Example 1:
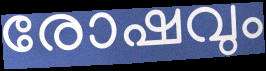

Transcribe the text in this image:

രോഷവും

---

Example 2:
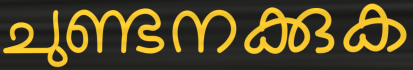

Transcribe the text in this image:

ചുണ്ടനക്കുക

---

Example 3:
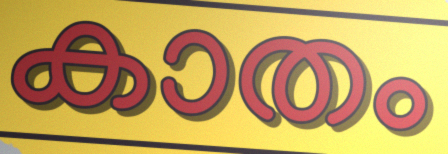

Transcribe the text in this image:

കാതം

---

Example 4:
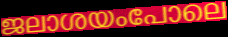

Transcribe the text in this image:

ജലാശയംപോലെ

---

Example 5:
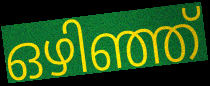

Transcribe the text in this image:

ഒഴിഞ്ഞ്